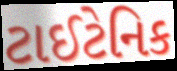
ટાઈટેનિક